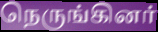
நெருங்கினர்